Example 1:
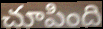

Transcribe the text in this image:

చూపింది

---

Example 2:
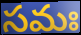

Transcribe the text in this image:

సమః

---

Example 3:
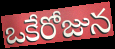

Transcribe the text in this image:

ఒకేరోజున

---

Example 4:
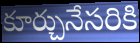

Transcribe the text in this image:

కూర్చునేసరికి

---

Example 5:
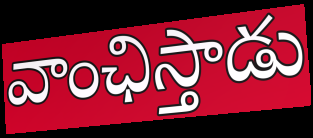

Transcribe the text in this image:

వాంఛిస్తాడు